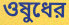
ওষুধের